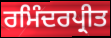
ਰਮਿੰਦਰਪ੍ਰੀਤ